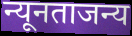
न्यूनताजन्य